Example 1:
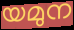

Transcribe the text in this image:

യമുന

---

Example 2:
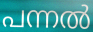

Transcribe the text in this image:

പന്നൽ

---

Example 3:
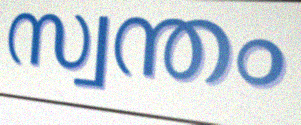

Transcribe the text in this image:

സ്വന്തം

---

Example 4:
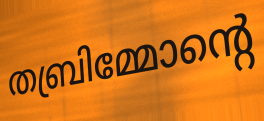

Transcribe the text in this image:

തബ്രിമ്മോന്റെ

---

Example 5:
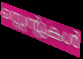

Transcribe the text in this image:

സ്റ്റെന്റുകൾ